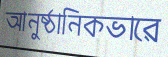
আনুষ্ঠানিকভাৱে